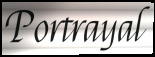
Portrayal